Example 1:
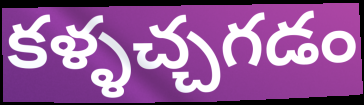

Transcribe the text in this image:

కళ్ళచ్చగడం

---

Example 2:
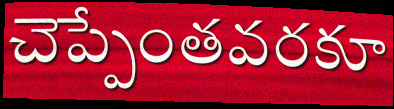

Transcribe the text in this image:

చెప్పేంతవరకూ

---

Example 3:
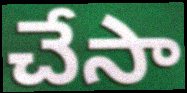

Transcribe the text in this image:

చేసా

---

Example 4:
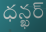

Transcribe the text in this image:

ధన్ఖర్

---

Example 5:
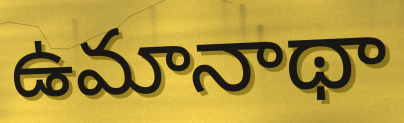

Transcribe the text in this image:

ఉమానాథా